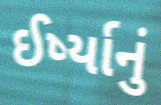
ઈર્ષ્યાનું